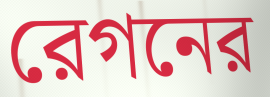
রেগনের